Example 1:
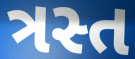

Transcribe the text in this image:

ત્રસ્ત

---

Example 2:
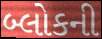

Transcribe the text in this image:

બ્લોકની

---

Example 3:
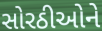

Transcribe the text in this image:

સોરઠીઓને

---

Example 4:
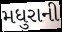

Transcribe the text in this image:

મધુરાની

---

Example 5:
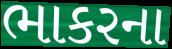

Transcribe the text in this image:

ભાકરના